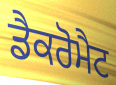
ਡੈਕਰੋਮੈਟ